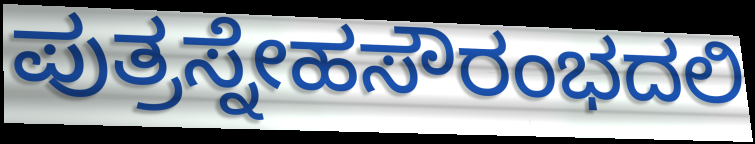
ಪುತ್ರಸ್ನೇಹಸೌರಂಭದಲಿ